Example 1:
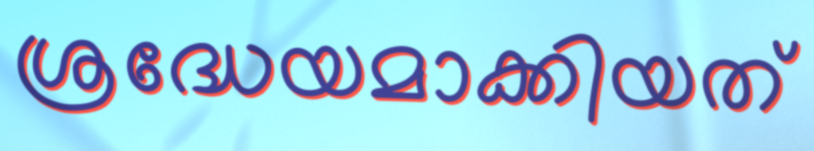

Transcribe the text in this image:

ശ്രദ്ധേയമാക്കിയത്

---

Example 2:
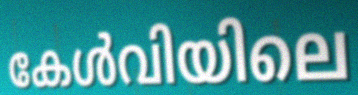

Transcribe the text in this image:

കേൾവിയിലെ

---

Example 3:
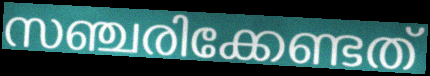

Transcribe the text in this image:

സഞ്ചരിക്കേണ്ടത്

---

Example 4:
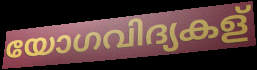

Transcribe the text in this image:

യോഗവിദ്യകള്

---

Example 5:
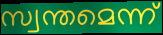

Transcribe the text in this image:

സ്വന്തമെന്ന്